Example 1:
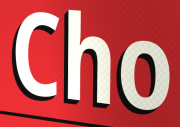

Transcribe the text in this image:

Cho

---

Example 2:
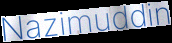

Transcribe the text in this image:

Nazimuddin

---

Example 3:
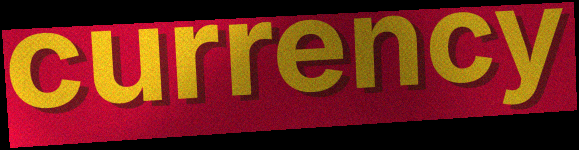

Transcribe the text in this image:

currency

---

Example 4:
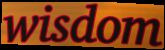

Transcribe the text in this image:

wisdom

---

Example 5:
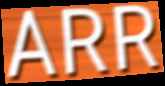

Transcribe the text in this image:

ARR